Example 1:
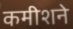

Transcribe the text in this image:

कमीशने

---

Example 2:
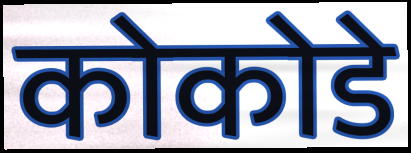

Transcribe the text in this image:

कोकोडे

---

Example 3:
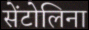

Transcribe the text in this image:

सेंटोलिना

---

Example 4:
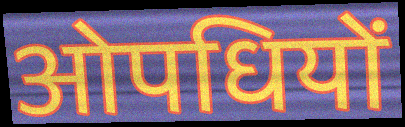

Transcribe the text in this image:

ओपधियों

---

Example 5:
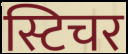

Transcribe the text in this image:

स्टिचर